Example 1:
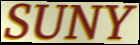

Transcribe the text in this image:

SUNY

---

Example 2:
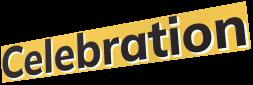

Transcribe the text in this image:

Celebration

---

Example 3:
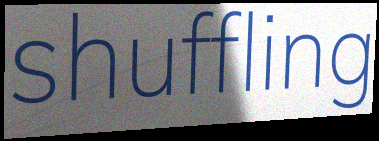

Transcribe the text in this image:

shuffling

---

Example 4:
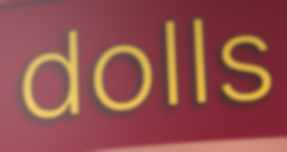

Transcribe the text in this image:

dolls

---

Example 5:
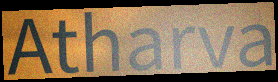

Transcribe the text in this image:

Atharva